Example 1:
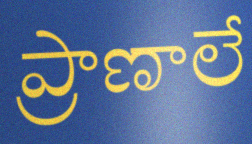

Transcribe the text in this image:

ప్రాణాలే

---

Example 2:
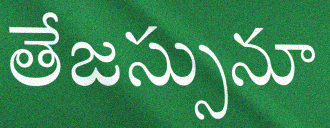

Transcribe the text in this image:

తేజస్సునూ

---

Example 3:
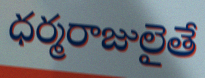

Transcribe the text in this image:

ధర్మరాజులైతే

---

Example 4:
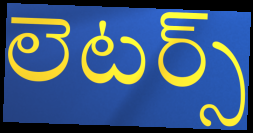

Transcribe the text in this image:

లెటర్స్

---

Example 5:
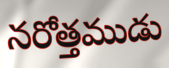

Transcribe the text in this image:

నరోత్తముడు